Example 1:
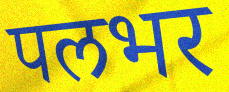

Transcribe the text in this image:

पलभर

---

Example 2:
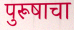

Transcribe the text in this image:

पुरूषाचा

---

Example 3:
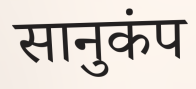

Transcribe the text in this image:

सानुकंप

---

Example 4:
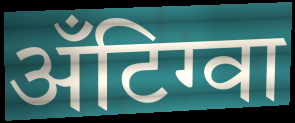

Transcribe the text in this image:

अँटिग्वा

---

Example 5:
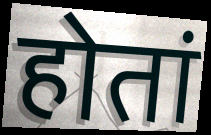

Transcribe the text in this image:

होतां